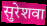
सुरेशवा